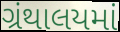
ગ્રંથાલયમાં